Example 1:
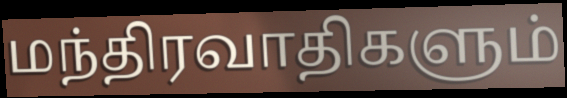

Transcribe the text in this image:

மந்திரவாதிகளும்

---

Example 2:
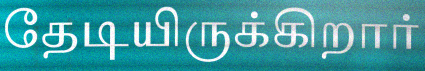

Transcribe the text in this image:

தேடியிருக்கிறார்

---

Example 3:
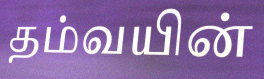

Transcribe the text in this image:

தம்வயின்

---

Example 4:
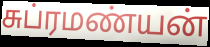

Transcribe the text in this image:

சுப்ரமண்யன்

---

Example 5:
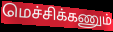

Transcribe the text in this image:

மெச்சிக்கணும்